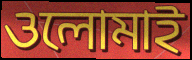
ওলোমাই